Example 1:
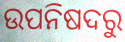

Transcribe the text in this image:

ଉପନିଷଦରୁ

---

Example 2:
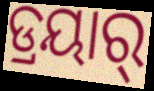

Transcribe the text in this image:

ଡ୍ରୟାର୍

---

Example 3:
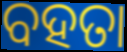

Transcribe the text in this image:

ବହତା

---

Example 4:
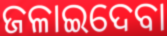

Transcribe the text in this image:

ଜଳାଇଦେବା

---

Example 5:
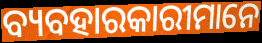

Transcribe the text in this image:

ବ୍ୟବହାରକାରୀମାନେ